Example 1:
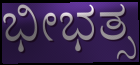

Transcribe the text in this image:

ಭೀಭತ್ಸ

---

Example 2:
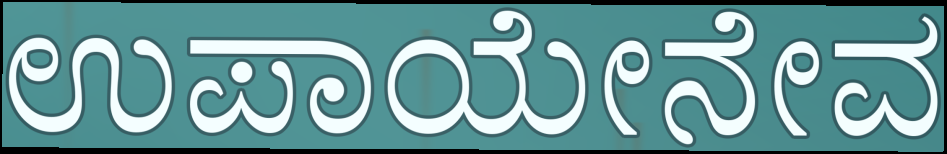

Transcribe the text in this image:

ಉಪಾಯೇನೇವ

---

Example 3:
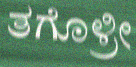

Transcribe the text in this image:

ತಗೊಳ್ರೀ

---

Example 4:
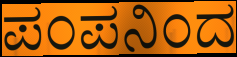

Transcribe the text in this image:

ಪಂಪನಿಂದ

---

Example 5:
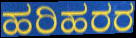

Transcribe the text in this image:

ಹರಿಹರರ